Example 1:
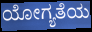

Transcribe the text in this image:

ಯೋಗ್ಯತೆಯ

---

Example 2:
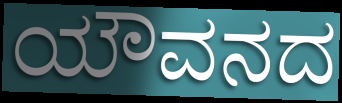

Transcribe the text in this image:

ಯೌವನದ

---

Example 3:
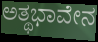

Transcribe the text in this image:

ಅತ್ಥಭಾವೇನ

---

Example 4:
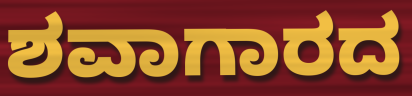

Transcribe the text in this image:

ಶವಾಗಾರದ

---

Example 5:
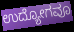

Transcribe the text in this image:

ಉದ್ಯೋಗವೂ